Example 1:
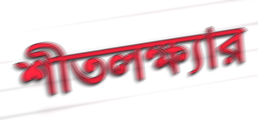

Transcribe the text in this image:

শীতলক্ষ্যার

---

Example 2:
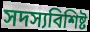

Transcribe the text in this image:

সদস্যবিশিষ্ট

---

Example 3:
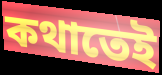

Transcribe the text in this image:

কথাতেই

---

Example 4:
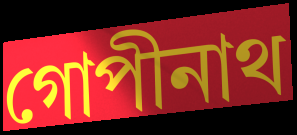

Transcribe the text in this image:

গোপীনাথ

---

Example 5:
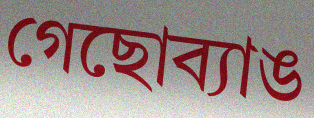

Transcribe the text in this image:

গেছোব্যাঙ